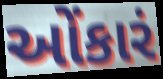
ઓંકારં